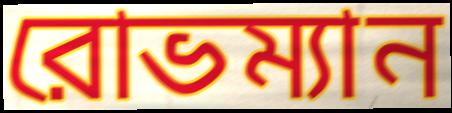
রোভম্যান